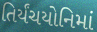
તિર્યંચયોનિમાં